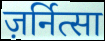
ज़र्नित्सा